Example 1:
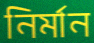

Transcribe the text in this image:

নিৰ্মান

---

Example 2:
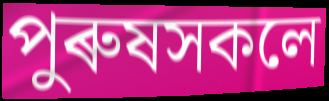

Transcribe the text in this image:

পুৰুষসকলে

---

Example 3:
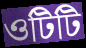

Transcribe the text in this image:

ওটিটি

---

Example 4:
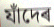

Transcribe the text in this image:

যাঁদেৰ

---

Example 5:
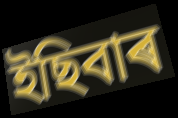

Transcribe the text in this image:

ইছিবাৰ